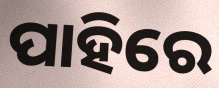
ପାହିରେ